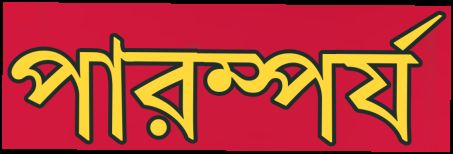
পারম্পর্য